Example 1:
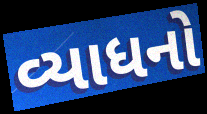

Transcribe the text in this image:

વ્યાધનો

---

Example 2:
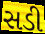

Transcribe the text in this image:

સડી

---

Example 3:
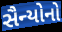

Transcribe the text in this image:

સૈન્યોનો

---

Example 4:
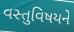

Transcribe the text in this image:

વસ્તુવિષયને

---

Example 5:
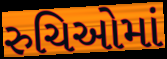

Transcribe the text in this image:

રુચિઓમાં